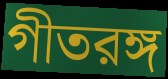
গীতরঙ্গ